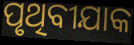
ପୃଥିବୀଯାକ